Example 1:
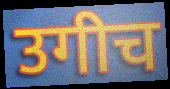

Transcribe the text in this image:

उगीच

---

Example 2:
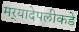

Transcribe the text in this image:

मर्यादेपलीकडे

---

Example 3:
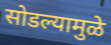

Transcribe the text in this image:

सोडल्यामुळे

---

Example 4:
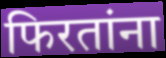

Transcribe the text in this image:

फिरतांना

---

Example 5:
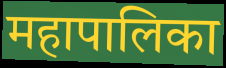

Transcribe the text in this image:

महापालिका